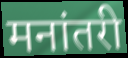
मनांतरी